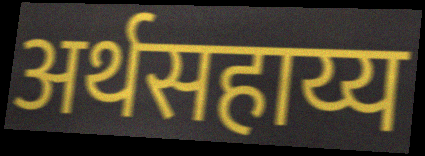
अर्थसहाय्य